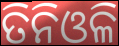
ତିନିଓଳି